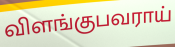
விளங்குபவராய்